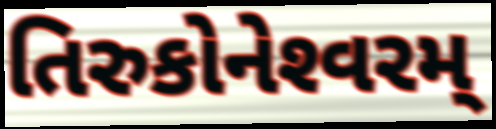
તિરુકોનેશ્‍વરમ્